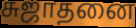
சுஜாதனை